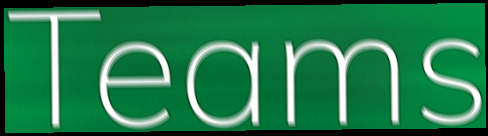
Teams